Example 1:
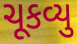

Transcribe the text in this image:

ચૂકવ્યુ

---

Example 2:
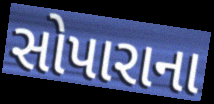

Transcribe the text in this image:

સોપારાના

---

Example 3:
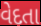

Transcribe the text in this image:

વેદતા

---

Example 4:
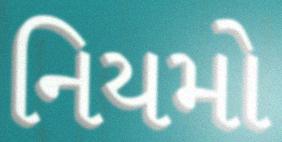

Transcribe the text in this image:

નિયમો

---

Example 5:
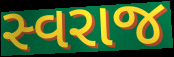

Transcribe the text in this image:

સ્વરાજ